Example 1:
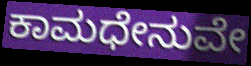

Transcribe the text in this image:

ಕಾಮಧೇನುವೇ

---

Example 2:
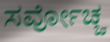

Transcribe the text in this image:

ಸರ್ವೋಚ್ಚ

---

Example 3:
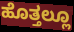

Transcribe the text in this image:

ಹೊತ್ತಲ್ಲೂ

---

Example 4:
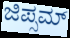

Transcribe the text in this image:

ಜಿಪ್ಸಮ್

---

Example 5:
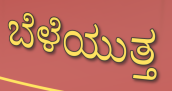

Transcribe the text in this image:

ಬೆಳೆಯುತ್ತ